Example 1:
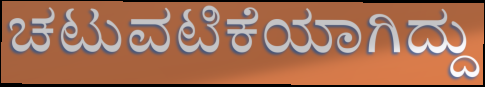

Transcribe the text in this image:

ಚಟುವಟಿಕೆಯಾಗಿದ್ದು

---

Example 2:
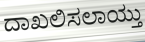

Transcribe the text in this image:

ದಾಖಲಿಸಲಾಯ್ತು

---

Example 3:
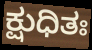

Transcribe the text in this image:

ಕ್ಷುಧಿತಃ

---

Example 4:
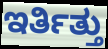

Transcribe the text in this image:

ಇರ್ತಿತ್ತು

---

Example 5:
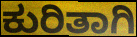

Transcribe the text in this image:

ಕುರಿತಾಗಿ